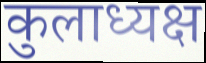
कुलाध्यक्ष